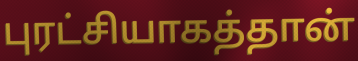
புரட்சியாகத்தான்